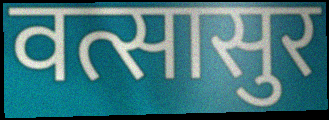
वत्सासुर